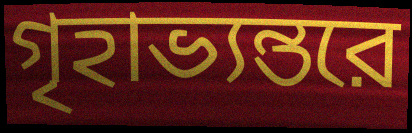
গৃহাভ্যন্তরে